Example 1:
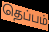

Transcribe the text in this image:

தெப்பம்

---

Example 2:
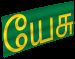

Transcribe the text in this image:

யேசு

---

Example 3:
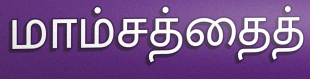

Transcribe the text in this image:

மாம்சத்தைத்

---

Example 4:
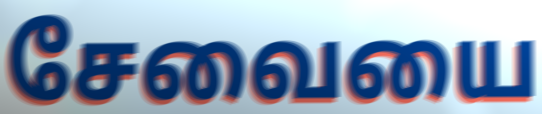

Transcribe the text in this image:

சேவையை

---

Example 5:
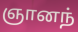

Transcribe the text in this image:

ஞானந்